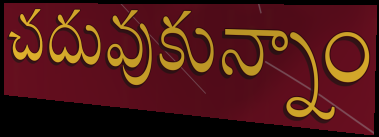
చదువుకున్నాం